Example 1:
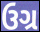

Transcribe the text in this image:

ઉગ્ર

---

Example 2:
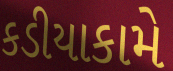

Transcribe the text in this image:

કડીયાકામે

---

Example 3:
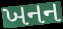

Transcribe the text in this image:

ખનન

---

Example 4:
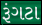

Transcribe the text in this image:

રૂંગટા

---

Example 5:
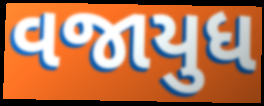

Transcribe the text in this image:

વજાયુધ